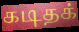
கடிதக்